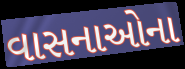
વાસનાઓના